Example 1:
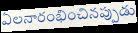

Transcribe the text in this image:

ఏలనారంభించినప్పుడు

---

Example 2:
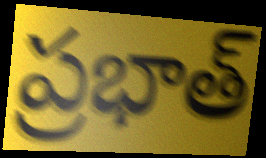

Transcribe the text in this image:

ప్రభాత్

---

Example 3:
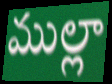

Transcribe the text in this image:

ముల్లా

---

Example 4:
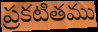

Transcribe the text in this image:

ప్రకటితము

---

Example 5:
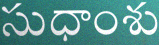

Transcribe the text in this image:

సుధాంశు